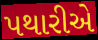
પથારીએ